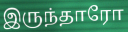
இருந்தாரோ